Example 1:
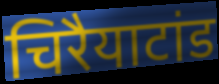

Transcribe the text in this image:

चिरैयाटांड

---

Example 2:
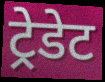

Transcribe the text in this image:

ट्रेडेट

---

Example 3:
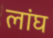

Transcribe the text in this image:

लांघ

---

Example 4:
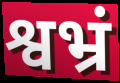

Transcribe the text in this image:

श्वभ्रं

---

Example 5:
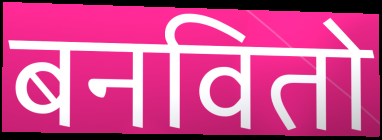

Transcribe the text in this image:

बनवितो